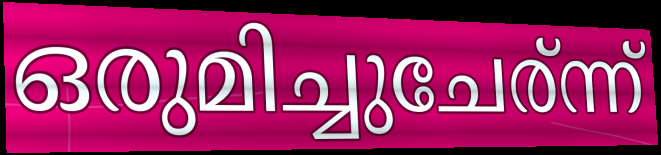
ഒരുമിച്ചുചേര്ന്ന്